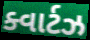
ક્વાર્ટઝ